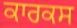
ਕਾਰਕਸ